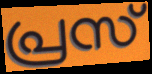
പ്രസ്